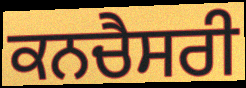
ਕਨਚੈਸਰੀ